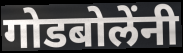
गोडबोलेंनी